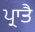
ਪ੍ਰਾਤੈ